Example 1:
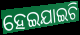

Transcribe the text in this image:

ହେଇଯାଇଚି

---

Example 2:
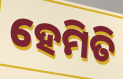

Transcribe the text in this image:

ହେମିତି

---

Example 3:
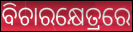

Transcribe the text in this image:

ବିଚାରକ୍ଷେତ୍ରରେ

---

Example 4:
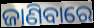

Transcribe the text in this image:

ଜାଣିବାରେ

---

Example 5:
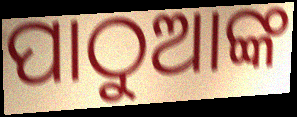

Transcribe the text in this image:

ପାଠୁଆଙ୍କ